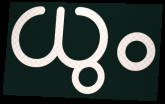
ധും